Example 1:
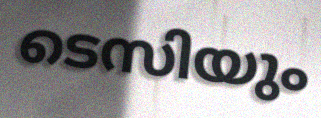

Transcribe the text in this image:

ടെസിയും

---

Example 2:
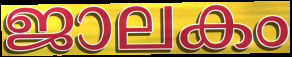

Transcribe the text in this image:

ജാലകം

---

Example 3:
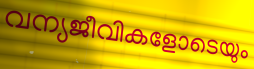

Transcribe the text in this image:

വന്യജീവികളോടെയും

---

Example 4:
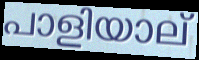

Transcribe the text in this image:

പാളിയാല്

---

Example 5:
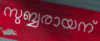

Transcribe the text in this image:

സുബ്ബരായന്